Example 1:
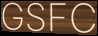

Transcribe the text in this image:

GSFC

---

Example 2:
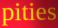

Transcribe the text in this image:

pities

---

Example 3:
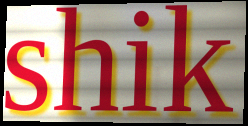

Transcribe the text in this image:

shik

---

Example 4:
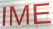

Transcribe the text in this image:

IME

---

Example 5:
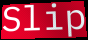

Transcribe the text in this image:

Slip